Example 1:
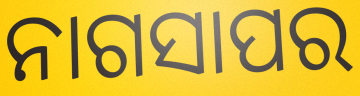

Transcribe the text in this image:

ନାଗସାପର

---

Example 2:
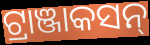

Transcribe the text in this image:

ଟ୍ରାଞ୍ଜାକସନ୍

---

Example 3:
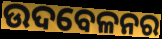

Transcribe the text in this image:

ଉଦବେଳନର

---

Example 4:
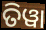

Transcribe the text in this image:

ତିୱା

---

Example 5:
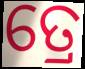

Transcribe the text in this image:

ତ୍ରେ